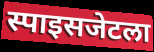
स्पाइसजेटला